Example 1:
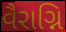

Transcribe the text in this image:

વૈરાગ્નિ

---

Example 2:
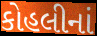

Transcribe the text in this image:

કોહલીનાં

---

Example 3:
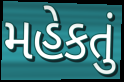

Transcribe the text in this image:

મહેકતું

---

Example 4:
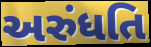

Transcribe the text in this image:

અરુંધતિ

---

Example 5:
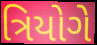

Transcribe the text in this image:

ત્રિયોગે